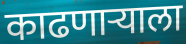
काढणार्‍याला